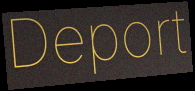
Deport